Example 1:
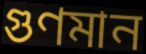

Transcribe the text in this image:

গুণমান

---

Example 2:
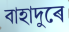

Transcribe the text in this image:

বাহাদুৰে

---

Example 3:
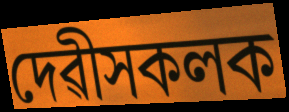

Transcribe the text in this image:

দেৱীসকলক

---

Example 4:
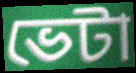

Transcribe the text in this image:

ভেটা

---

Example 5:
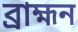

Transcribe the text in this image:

ব্ৰাহ্মন